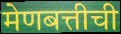
मेणबत्तीची